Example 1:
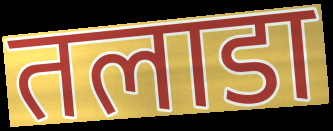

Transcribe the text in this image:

तलाडा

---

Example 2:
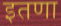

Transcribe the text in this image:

इतणा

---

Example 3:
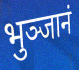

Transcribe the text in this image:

भुञ्जानं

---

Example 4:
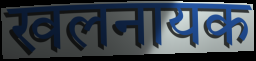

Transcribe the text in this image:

खलनायक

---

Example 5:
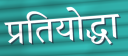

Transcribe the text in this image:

प्रतियोद्धा